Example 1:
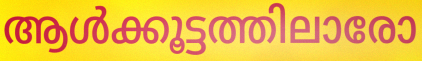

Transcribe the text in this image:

ആൾക്കൂട്ടത്തിലാരോ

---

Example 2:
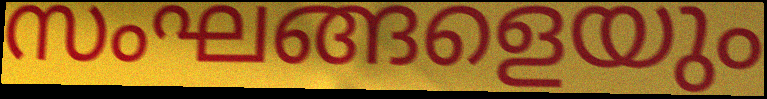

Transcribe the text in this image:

സംഘങ്ങളെയും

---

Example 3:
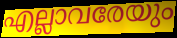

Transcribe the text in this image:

എല്ലാവരേയും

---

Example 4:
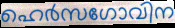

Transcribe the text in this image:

ഹെർസഗോവിന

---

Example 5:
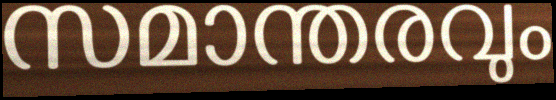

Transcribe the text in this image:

സമാന്തരവും